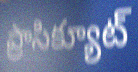
ప్రాసిక్యూట్